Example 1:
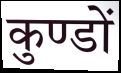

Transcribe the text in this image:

कुण्डों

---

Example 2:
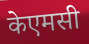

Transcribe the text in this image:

केएमसी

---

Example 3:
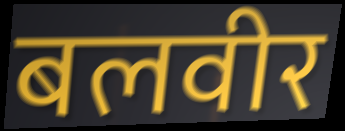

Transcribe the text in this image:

बलवीर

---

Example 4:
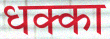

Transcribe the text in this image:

धक्का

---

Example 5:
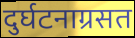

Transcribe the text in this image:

दुर्घटनाग्रसत